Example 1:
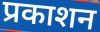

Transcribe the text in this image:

प्रकाशन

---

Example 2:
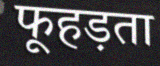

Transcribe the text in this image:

फूहड़ता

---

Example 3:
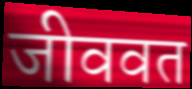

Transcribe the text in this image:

जीववत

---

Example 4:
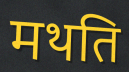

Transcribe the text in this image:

मथति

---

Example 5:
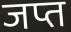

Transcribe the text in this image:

जप्त